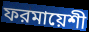
ফরমায়েশী